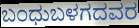
ಬಂಧುಬಳಗದವರ